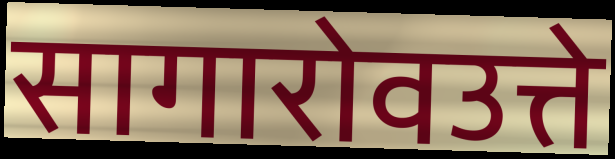
सागारोवउत्ते